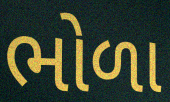
ભોળા